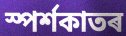
স্পৰ্শকাতৰ